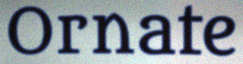
Ornate